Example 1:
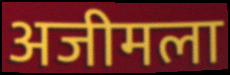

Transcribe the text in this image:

अजीमला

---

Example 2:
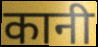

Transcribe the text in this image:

कानी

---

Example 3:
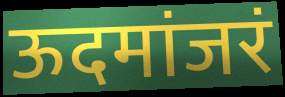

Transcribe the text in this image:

ऊदमांजरं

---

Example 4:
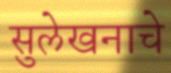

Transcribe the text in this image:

सुलेखनाचे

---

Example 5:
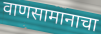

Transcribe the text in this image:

वाणसामानाचा